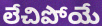
లేచిపోయే